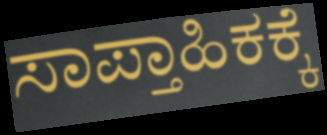
ಸಾಪ್ತಾಹಿಕಕ್ಕೆ